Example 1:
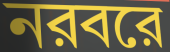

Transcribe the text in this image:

নরবরে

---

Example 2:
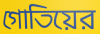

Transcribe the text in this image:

গোতিয়ের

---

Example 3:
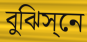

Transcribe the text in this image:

বুঝিস্‌নে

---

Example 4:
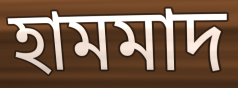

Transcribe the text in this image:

হামমাদ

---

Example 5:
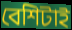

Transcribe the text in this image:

বেশিটাই